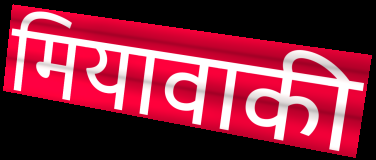
मियावाकी